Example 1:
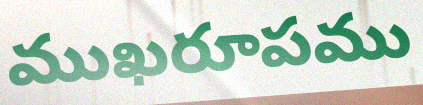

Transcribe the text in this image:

ముఖరూపము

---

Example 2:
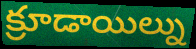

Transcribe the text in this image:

క్రూడాయిల్ను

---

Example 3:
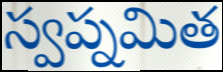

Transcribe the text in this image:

స్వప్నమిత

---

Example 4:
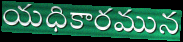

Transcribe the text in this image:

యధికారమున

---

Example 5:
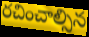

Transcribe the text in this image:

రచించాల్సిన